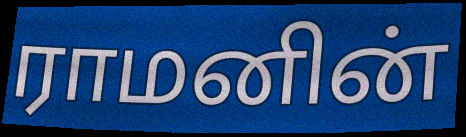
ராமனின்